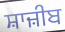
ਸ਼ਾਜ਼ੀਬ